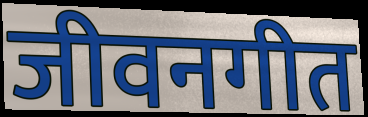
जीवनगीत